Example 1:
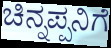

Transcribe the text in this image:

ಚಿನ್ನಪ್ಪನಿಗೆ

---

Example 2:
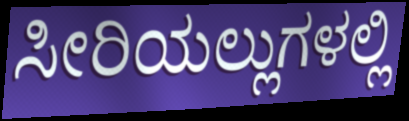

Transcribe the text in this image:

ಸೀರಿಯಲ್ಲುಗಳಲ್ಲಿ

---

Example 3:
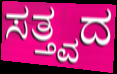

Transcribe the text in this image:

ಸತ್ತ್ವದ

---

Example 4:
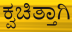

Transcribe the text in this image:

ಕ್ವಚಿತ್ತಾಗಿ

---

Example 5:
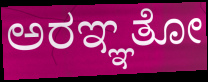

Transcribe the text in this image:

ಅರಞ್ಞತೋ